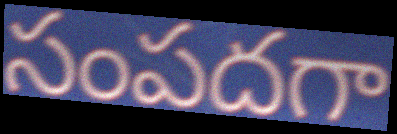
సంపదగా